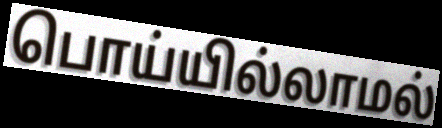
பொய்யில்லாமல்